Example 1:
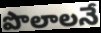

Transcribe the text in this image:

పొలాలనే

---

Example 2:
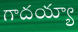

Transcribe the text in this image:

గాదయ్యా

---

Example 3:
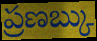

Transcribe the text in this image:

ప్రణబ్కు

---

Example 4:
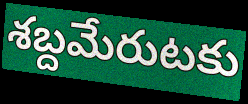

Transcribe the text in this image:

శబ్దమేరుటకు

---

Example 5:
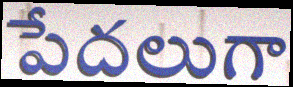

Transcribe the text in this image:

పేదలుగా